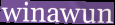
winawun